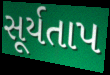
સૂર્યતાપ